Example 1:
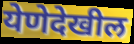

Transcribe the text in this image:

येणेदेखील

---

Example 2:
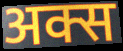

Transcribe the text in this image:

अक्स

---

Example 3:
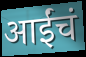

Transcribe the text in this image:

आईंचं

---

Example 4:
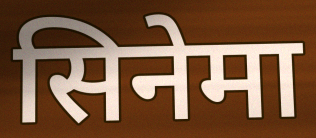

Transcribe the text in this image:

सिनेमा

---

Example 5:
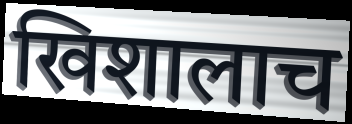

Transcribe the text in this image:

खिशालाच